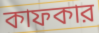
কাফকার